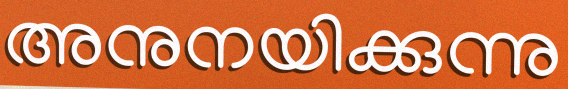
അനുനയിക്കുന്നു